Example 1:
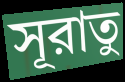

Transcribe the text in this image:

সূরাতু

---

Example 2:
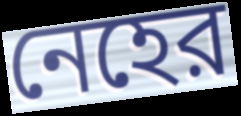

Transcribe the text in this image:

নেহের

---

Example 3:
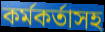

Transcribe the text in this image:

কর্মকর্তাসহ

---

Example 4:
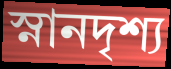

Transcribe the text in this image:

স্নানদৃশ্য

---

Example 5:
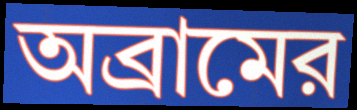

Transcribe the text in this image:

অব্রামের